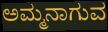
ಅಮ್ಮನಾಗುವ